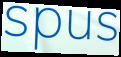
spus